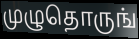
முழுதொருங்